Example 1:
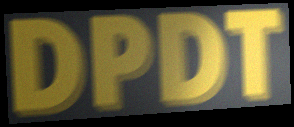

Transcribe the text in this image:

DPDT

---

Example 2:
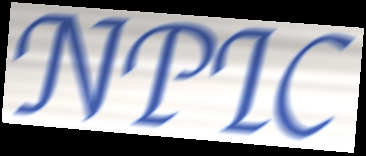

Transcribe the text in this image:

NPIC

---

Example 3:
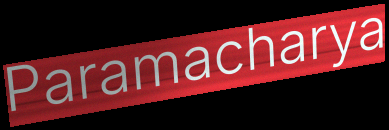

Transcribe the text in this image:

Paramacharya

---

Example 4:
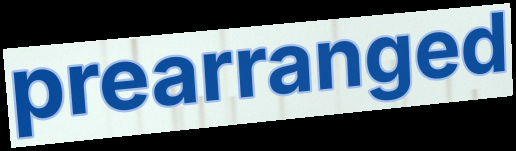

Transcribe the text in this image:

prearranged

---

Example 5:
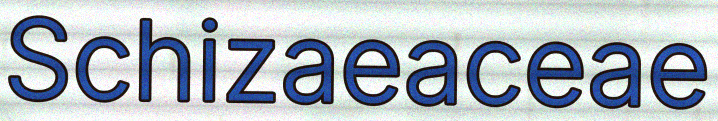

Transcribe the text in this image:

Schizaeaceae